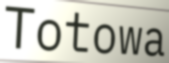
Totowa